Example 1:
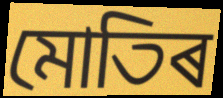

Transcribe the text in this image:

মোতিৰ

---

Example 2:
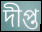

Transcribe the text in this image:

দীপ্ত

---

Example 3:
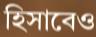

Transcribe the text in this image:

হিসাবেও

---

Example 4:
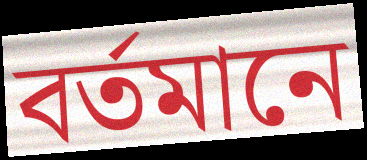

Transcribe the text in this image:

বৰ্তমানে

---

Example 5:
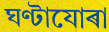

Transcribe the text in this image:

ঘণ্টাযোৰা